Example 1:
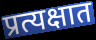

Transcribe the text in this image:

प्रत्यक्षात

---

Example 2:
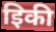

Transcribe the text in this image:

इिकी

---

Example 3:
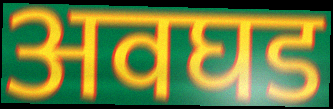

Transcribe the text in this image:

अवघड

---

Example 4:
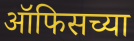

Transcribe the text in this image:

ऑफिसच्या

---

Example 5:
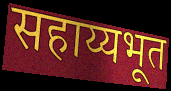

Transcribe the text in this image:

सहाय्यभूत